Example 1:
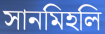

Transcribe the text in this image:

সানমিহলি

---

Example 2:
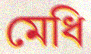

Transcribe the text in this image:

মেধি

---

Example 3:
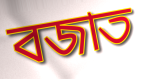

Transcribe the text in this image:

বজাত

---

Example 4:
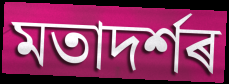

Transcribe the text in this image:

মতাদৰ্শৰ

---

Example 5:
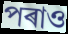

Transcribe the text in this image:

পৰাও